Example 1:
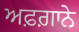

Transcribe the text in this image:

ਅਫ਼ਗ਼ਾਨੇ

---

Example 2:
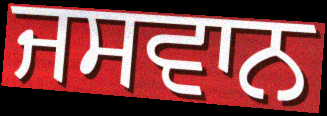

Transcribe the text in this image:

ਜਸਵਾਨ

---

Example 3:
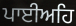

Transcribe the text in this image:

ਪਾਈਅਹਿ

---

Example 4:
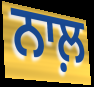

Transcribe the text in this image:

ਨਾਲ਼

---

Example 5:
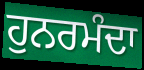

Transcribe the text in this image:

ਹੁਨਰਮੰਦਾ